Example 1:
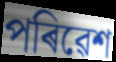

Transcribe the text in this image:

পৰিৱেশ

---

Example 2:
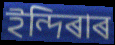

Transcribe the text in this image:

ইন্দিৰাৰ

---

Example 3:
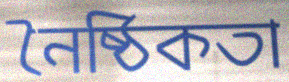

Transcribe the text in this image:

নৈষ্ঠিকতা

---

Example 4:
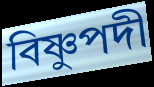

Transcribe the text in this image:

বিষ্ণুপদী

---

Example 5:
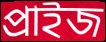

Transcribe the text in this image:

প্ৰাইজ